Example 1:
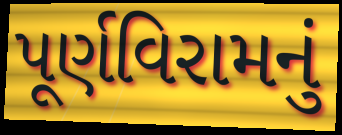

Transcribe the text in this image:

પૂર્ણવિરામનું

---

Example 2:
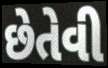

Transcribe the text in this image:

છેતેવી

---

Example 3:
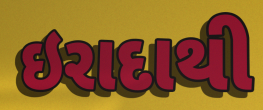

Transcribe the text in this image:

ઇરાદાથી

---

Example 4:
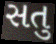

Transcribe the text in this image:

સતુ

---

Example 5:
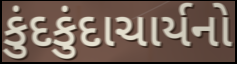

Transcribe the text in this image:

કુંદકુંદાચાર્યનો